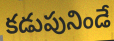
కడుపునిండే